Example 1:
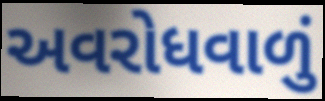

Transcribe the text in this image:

અવરોધવાળું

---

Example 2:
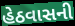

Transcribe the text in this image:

હેઠવાસની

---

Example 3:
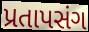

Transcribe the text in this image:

પ્રતાપસંગ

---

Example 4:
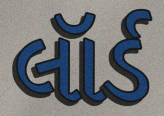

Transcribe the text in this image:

લૉર્ડ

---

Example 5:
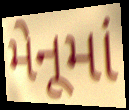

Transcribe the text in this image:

મેનૂમાં